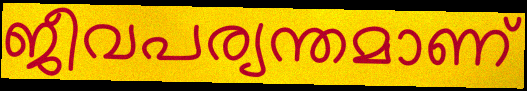
ജീവപര്യന്തമാണ്